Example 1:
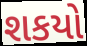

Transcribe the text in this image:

શકયો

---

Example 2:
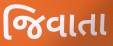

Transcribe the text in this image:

જિવાતા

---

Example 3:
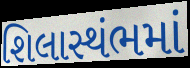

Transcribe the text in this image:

શિલાસ્થંભમાં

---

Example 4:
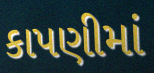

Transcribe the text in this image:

કાપણીમાં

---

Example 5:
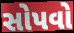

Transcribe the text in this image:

સોપવો